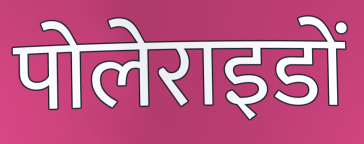
पोलेराइडों